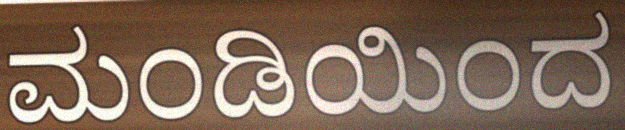
ಮಂಡಿಯಿಂದ